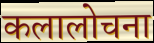
कलालोचना